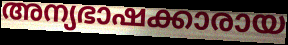
അന്യഭാഷക്കാരായ